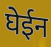
घेईन